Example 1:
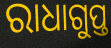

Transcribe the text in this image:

ରାଧାଗୁପ୍ତ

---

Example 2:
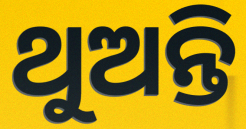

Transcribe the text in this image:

ଥୁଅନ୍ତି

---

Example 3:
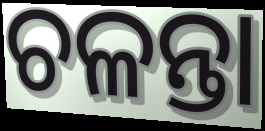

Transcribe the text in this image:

ଚଳନ୍ତା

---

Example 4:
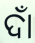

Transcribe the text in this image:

ଦାଁ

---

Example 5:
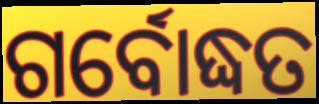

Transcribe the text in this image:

ଗର୍ବୋଦ୍ଧତ